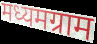
मध्यमग्राम